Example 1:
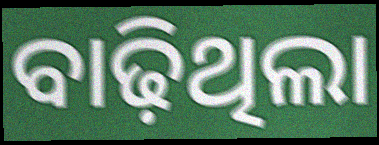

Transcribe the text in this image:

ବାଢ଼ିଥିଲା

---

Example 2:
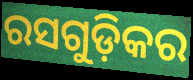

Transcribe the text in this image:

ରସଗୁଡ଼ିକର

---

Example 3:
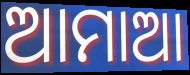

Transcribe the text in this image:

ଆମାଆ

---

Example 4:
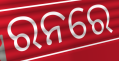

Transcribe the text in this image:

ରନରେ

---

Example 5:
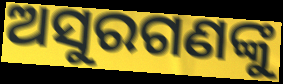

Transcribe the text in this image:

ଅସୁରଗଣଙ୍କୁ